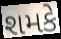
શમકે